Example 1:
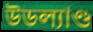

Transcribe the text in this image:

উডল্যাণ্ড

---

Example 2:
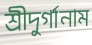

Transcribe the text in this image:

শ্রীদুর্গানাম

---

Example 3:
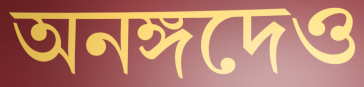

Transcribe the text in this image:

অনঙ্গদেও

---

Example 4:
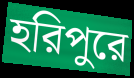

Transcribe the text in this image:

হরিপুরে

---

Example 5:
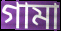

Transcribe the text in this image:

গামা